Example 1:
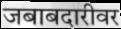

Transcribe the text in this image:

जबाबदारीवर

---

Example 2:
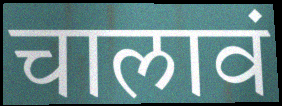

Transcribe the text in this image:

चालावं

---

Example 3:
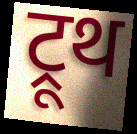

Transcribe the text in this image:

ट्रूथ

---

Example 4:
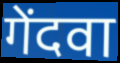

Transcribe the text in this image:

गेंदवा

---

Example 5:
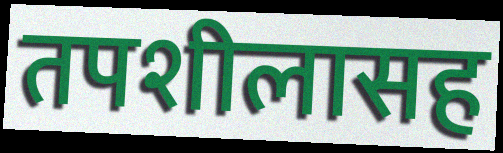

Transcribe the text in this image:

तपशीलासह